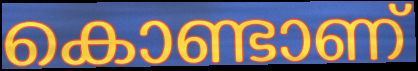
കൊണ്ടാണ്